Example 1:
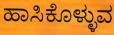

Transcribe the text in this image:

ಹಾಸಿಕೊಳ್ಳುವ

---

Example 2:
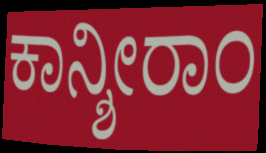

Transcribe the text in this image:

ಕಾನ್ಶೀರಾಂ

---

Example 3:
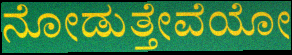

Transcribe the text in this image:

ನೋಡುತ್ತೇವೆಯೋ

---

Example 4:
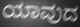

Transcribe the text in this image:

ಯಾವುದ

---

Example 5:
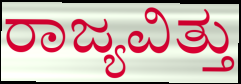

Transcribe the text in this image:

ರಾಜ್ಯವಿತ್ತು